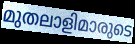
മുതലാളിമാരുടെ